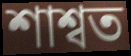
শাশ্বত